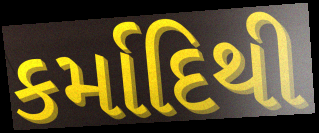
કર્માદિથી